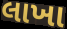
લાખા